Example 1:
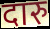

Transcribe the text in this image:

दारु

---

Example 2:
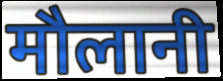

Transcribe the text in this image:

मौलानी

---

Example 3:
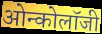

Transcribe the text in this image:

ओन्कोलॉजी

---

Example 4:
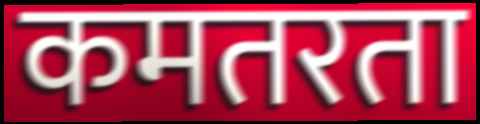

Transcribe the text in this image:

कमतरता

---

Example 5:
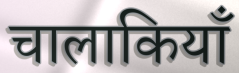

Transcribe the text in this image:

चालाकियाँ